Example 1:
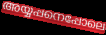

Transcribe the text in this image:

അയ്യപ്പനെപ്പോലെ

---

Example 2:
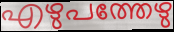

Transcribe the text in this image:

എഴുപത്തേഴു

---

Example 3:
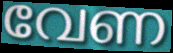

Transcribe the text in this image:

വേണ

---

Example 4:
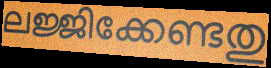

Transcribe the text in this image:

ലജ്ജിക്കേണ്ടതു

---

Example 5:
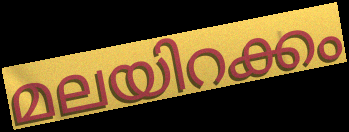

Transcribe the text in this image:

മലയിറക്കം